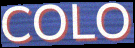
COLO